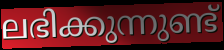
ലഭിക്കുന്നുണ്ട്